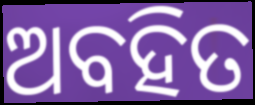
ଅବହିତ